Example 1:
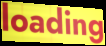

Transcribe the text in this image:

loading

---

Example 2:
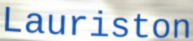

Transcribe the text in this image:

Lauriston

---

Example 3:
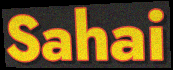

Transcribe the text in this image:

Sahai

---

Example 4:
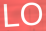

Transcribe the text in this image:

LO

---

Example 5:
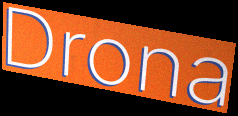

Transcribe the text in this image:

Drona